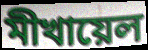
মীখায়েল